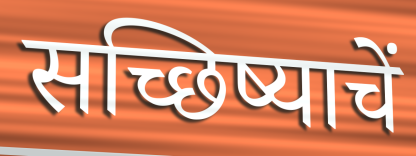
सच्छिष्याचें